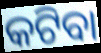
କଟିବା